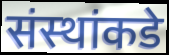
संस्थांकडे